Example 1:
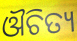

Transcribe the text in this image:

ଔଚିତ୍ଯ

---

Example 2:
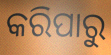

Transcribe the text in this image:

କରିପାରୁ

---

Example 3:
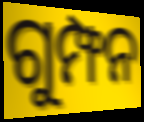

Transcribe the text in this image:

ଗୁମ୍ଫନ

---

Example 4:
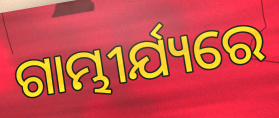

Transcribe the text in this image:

ଗାମ୍ଭୀର୍ଯ୍ୟରେ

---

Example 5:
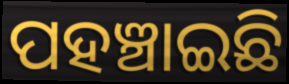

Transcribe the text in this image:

ପହଞ୍ଚାଇଛି